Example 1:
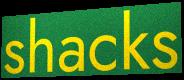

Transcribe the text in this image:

shacks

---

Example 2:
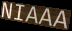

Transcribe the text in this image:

NIAAA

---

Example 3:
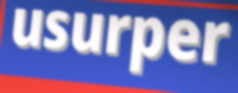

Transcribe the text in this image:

usurper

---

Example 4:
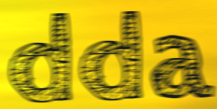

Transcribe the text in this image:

dda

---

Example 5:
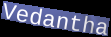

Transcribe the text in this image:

Vedantha